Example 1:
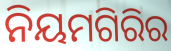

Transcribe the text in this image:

ନିୟମଗିରିର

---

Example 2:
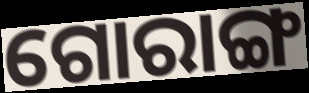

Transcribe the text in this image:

ଗୋରାଙ୍ଗ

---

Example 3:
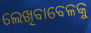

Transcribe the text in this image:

ଲେଖିବାବେଳକୁ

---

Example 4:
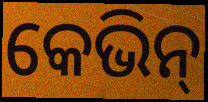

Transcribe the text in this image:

କେଭିନ୍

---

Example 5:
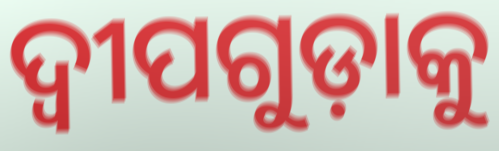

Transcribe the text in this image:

ଦ୍ୱୀପଗୁଡ଼ାକୁ